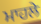
ਮਾਹਲੇ